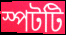
স্পটটি